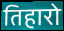
तिहारो